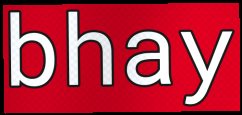
bhay